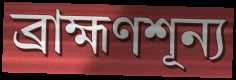
ব্রাহ্মণশূন্য